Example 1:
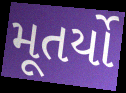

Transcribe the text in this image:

મૂતર્યો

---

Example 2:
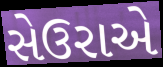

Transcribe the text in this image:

સેઉરાએ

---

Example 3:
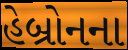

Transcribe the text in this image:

હેબ્રોનના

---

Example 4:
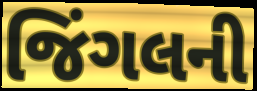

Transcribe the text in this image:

જિંગલની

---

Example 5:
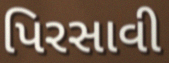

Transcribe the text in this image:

પિરસાવી